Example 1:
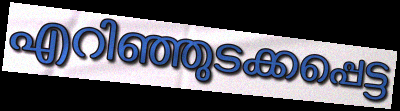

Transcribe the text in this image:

എറിഞ്ഞുടക്കപ്പെട്ട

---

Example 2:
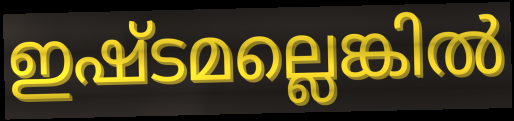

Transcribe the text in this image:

ഇഷ്ടമല്ലെങ്കിൽ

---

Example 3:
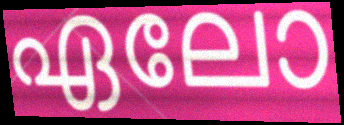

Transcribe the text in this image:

ഏലോ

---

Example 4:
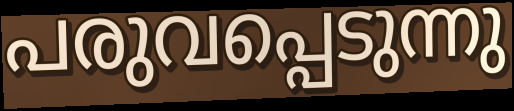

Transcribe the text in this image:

പരുവപ്പെടുന്നു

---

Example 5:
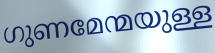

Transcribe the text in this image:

ഗുണമേന്മയുള്ള